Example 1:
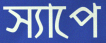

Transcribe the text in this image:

স্যাপে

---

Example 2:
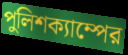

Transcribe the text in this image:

পুলিশক্যাম্পের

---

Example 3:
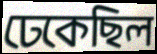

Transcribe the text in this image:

ঢেকেছিল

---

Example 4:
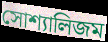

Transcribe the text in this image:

সোশ্যালিজম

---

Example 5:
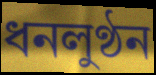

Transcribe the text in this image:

ধনলুণ্ঠন